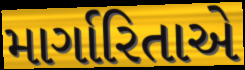
માર્ગારિતાએ